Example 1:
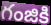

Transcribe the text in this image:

గంజికి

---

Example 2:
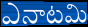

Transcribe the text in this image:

ఎనాటమి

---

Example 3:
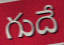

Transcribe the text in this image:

గుదే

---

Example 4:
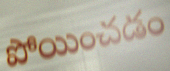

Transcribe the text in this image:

పోయించడం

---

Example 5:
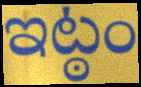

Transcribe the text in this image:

ఇట్ఠం